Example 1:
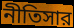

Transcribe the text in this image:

নীতিসার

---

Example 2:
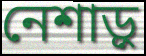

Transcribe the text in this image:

নেশাড়ু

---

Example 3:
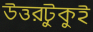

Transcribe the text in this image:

উত্তরটুকুই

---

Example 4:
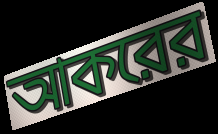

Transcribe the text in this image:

আকরের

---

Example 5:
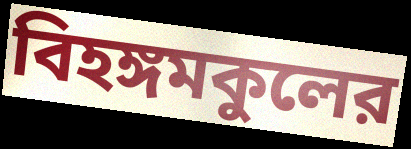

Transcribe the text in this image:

বিহঙ্গমকুলের